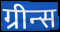
ग्रीन्स